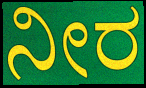
ನೀರ